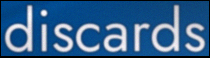
discards